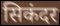
सिकंदर